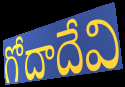
గోదాదేవి